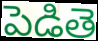
పెడితె